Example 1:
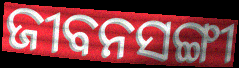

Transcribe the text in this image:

ଜୀବନସଙ୍ଗୀ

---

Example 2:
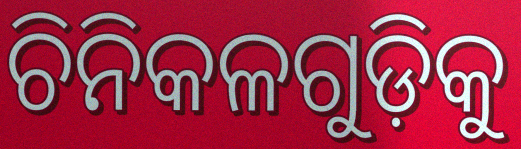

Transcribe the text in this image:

ଚିନିକଳଗୁଡ଼ିକୁ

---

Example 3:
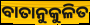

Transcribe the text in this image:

ବାତାନୁକୁଳିତ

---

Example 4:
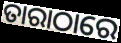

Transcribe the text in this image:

ତାରାଠାରେ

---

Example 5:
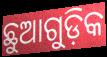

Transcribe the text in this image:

ଛୁଆଗୁଡ଼ିକ